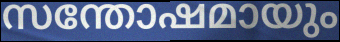
സന്തോഷമായും